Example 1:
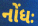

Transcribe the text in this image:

નોંધઃ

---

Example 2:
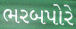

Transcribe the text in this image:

ભરબપોરે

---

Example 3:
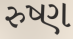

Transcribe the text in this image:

રુષ્ણ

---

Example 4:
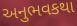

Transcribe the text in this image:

અનુભવકથા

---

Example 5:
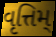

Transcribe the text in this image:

વૃત્તિમ્